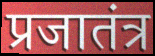
प्रजातंत्र